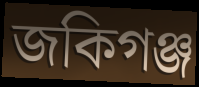
জকিগঞ্জ